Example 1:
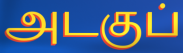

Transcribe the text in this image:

அடகுப்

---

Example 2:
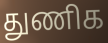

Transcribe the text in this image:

துணிக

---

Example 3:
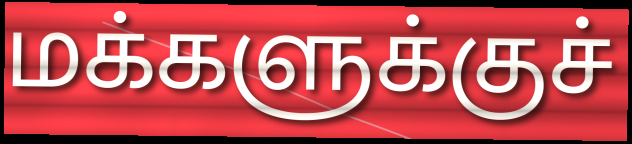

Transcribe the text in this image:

மக்களுக்குச்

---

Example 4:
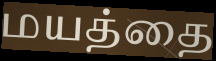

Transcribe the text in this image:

மயத்தை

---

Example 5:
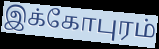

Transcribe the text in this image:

இக்கோபுரம்